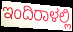
ಇಂದಿರಾಳಲ್ಲಿ